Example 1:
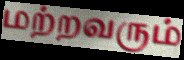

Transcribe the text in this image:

மற்றவரும்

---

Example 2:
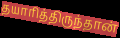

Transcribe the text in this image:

தயாரித்திருந்தான்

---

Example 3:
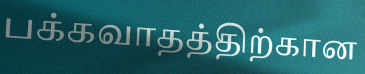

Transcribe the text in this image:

பக்கவாதத்திற்கான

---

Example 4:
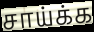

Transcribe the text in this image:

சாய்க்க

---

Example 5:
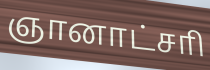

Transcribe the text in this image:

ஞானாட்சரி